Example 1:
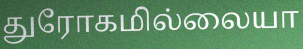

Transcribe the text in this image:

துரோகமில்லையா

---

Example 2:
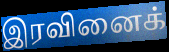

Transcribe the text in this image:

இரவினைக்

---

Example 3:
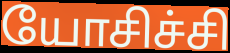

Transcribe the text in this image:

யோசிச்சி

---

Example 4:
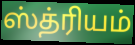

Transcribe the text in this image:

ஸ்த்ரியம்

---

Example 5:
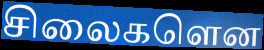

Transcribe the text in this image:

சிலைகளென